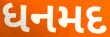
ધનમદ